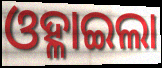
ଓହ୍ଳାଇଲା